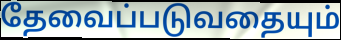
தேவைப்படுவதையும்